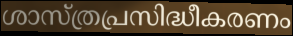
ശാസ്ത്രപ്രസിദ്ധീകരണം